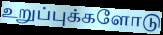
உறுப்புக்களோடு